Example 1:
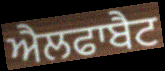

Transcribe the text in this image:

ਐਲਫਾਬੈਟ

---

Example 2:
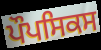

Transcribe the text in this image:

ਪੌਪਸਿਕਸ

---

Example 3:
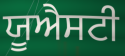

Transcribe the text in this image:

ਯੂਐਸਟੀ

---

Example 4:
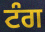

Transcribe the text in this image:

ਟੰਗ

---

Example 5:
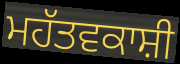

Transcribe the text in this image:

ਮਹੱਤਵਕਾਸ਼ੀ